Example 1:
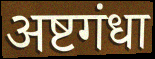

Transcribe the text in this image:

अष्टगंधा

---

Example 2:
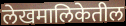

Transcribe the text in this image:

लेखमालिकेतील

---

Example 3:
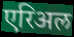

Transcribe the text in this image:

एरिअल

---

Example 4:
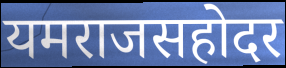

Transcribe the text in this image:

यमराजसहोदर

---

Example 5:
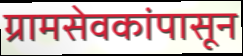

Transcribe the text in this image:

ग्रामसेवकांपासून